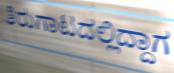
ತಿರುಗಾಟದಲ್ಲಿದ್ದಾಗ